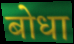
बोधा